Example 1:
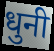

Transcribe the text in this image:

धुनी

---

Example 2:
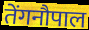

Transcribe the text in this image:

तेंगनौपाल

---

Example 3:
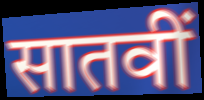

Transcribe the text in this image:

सातवीं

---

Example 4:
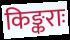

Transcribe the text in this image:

किङ्कराः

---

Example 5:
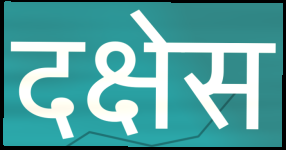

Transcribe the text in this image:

दक्षेस